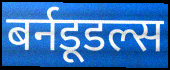
बर्नडूडल्स